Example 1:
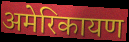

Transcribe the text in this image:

अमेरिकायण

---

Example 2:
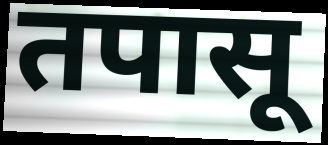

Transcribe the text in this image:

तपासू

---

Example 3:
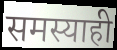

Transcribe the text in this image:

समस्याही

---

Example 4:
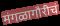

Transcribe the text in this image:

मंगळागौरीचं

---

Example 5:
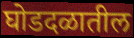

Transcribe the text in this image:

घोडदळातील